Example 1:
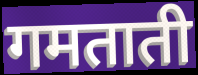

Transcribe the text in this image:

गमताती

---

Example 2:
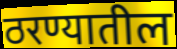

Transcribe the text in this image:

ठरण्यातील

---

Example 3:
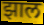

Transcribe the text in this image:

झाल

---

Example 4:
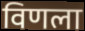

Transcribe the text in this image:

विणला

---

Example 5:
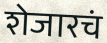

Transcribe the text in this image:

शेजारचं